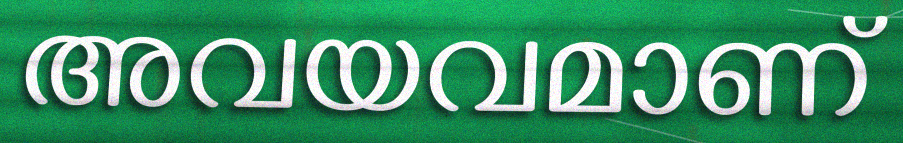
അവയവമാണ്